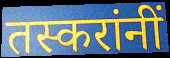
तस्करांनीं